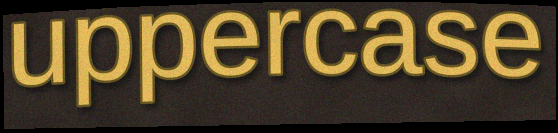
uppercase